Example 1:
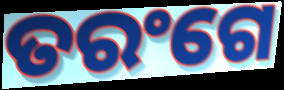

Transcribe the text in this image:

ତରଂଗେ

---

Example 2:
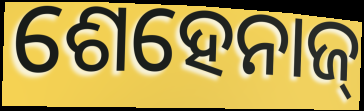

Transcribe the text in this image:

ଶେହେନାଜ୍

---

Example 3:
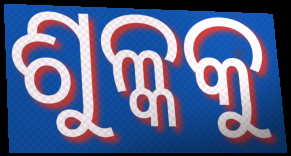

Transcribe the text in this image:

ଶୁଳ୍କକୁ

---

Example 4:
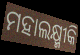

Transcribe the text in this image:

ମହାଲକ୍ଷ୍ମୀକି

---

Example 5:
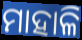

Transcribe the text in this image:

ମାହାଳି